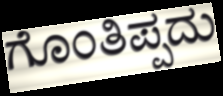
ಗೊಂತಿಪ್ಪದು